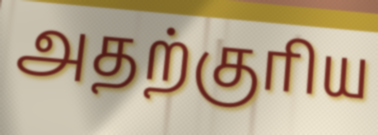
அதற்குரிய